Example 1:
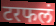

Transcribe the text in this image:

टरफलं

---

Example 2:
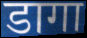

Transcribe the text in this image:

डागा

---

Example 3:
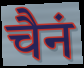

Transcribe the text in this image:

चैनं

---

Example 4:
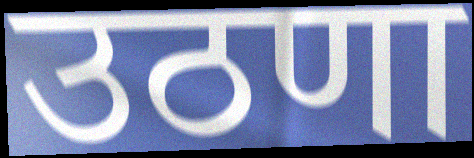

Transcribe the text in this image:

उठणा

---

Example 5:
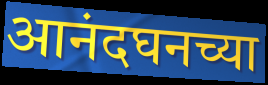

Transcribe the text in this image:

आनंदघनच्या